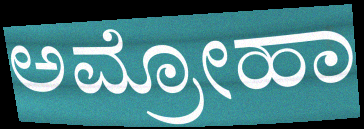
ಅಮ್ರೋಹಾ